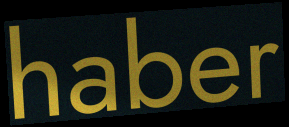
haber